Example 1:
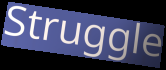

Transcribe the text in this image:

Struggle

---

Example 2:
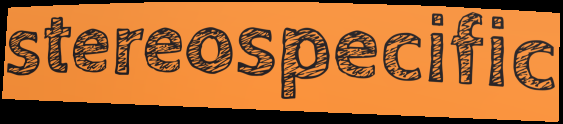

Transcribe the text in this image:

stereospecific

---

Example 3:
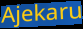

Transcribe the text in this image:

Ajekaru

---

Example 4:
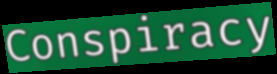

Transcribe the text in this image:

Conspiracy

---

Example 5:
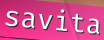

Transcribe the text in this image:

savita